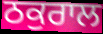
ਠਕੁਰਾਲ